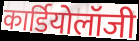
कार्डियोलॉजी